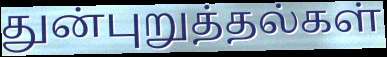
துன்புறுத்தல்கள்